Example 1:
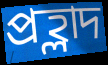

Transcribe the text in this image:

প্ৰহ্লাদ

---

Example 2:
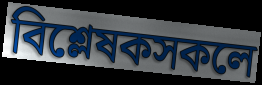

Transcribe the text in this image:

বিশ্লেষকসকলে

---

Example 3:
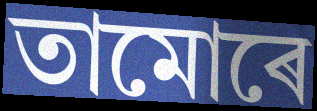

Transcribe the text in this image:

তামোৰে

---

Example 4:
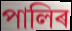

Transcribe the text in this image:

পালিৰ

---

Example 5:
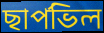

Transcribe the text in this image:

ছাৰ্পভিল